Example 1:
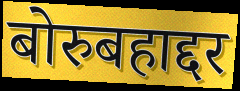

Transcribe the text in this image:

बोरुबहाद्दर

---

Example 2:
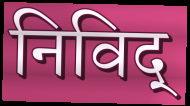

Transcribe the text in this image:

निविद्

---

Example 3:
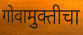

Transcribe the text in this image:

गोवामुक्तीचा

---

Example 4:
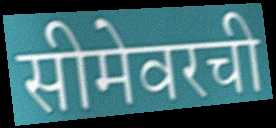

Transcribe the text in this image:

सीमेवरची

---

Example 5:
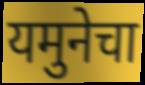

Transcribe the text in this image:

यमुनेचा